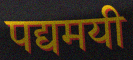
पद्यमयी